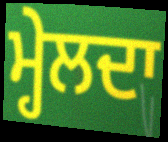
ਮ੍ਹੇਲਦਾ